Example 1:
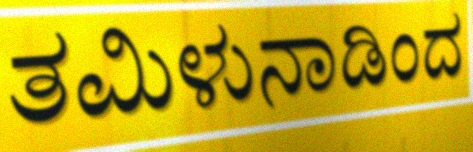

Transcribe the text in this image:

ತಮಿಳುನಾಡಿಂದ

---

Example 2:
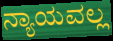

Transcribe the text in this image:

ನ್ಯಾಯವಲ್ಲ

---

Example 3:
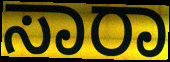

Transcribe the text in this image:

ಸಾರಾ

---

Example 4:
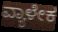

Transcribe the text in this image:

ವ್ಯಾಳೇಕ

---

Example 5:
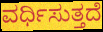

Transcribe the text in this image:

ವರ್ಧಿಸುತ್ತದೆ